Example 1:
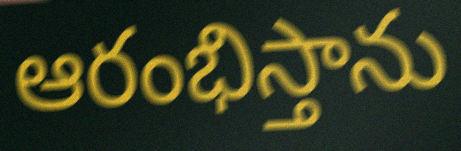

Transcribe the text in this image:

ఆరంభిస్తాను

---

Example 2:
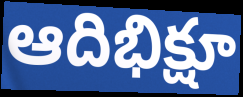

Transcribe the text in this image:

ఆదిభిక్షూ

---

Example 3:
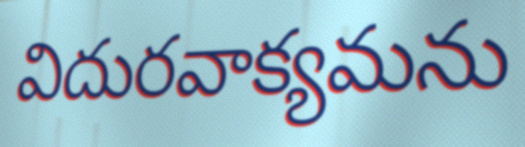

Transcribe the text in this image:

విదురవాక్యమను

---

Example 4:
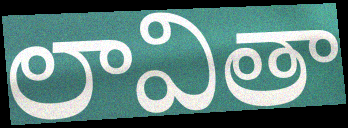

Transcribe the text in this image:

లావితా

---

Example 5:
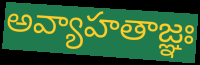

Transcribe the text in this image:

అవ్యాహతాజ్ఞః